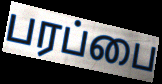
பரப்பை